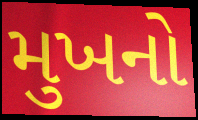
મુખનો